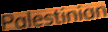
Palestinian